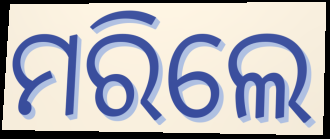
ମରିଲେ